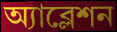
অ্যাব্লেশন